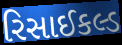
રિસાઈકલ્ડ